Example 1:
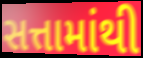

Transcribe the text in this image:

સત્તામાંથી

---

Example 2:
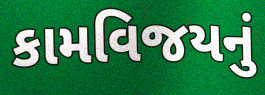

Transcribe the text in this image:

કામવિજયનું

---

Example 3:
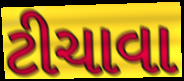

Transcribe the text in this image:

ટીચાવા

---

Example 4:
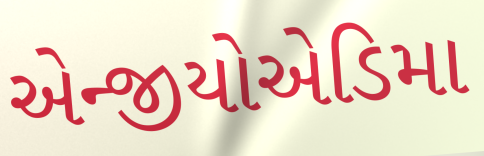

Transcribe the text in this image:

એન્જીયોએડિમા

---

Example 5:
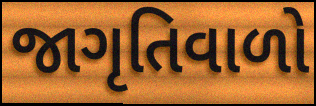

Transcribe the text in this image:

જાગૃતિવાળો